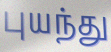
புயந்து